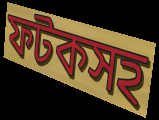
ফটকসহ